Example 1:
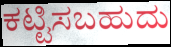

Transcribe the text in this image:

ಕಟ್ಟಿಸಬಹುದು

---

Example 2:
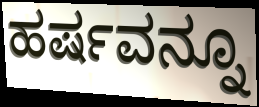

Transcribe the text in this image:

ಹರ್ಷವನ್ನೂ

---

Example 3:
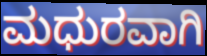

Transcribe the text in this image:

ಮಧುರವಾಗಿ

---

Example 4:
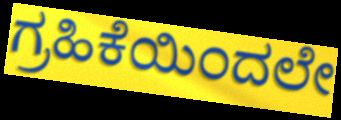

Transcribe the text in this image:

ಗ್ರಹಿಕೆಯಿಂದಲೇ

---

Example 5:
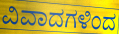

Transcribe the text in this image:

ವಿವಾದಗಳಿಂದ